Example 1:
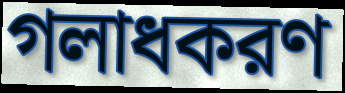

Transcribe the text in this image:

গলাধকরণ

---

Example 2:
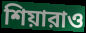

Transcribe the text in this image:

শিয়ারাও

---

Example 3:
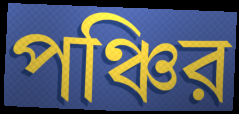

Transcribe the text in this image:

পঞ্চির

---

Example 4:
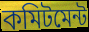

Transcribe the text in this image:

কমিটমেন্ট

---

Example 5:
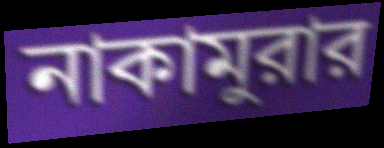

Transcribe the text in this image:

নাকামুরার